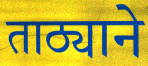
ताठ्याने